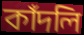
কাঁদলি